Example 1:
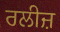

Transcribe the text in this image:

ਰਲੀਜ਼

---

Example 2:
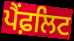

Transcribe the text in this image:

ਪੈਂਫ਼ਲਿਟ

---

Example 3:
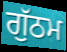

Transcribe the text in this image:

ਗੁੱਠਮ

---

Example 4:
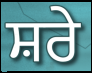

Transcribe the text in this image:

ਸ਼ਰੇ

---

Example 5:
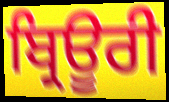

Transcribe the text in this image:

ਬ੍ਰਿਊਰੀ